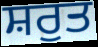
ਸ਼ਰੁਤ